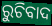
ରୁଚିବାଦ